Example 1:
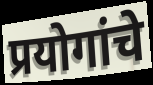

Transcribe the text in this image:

प्रयोगांचे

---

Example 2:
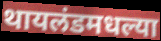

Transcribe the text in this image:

थायलंडमधल्या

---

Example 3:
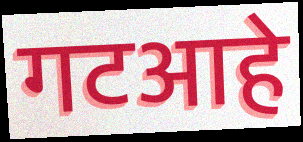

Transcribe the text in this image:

गटआहे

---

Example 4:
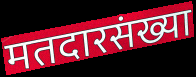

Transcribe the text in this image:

मतदारसंख्या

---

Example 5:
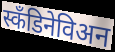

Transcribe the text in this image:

स्कॅंडिनेविअन